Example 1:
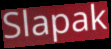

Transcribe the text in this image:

Slapak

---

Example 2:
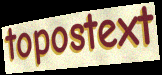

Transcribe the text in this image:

topostext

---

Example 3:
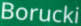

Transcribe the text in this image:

Borucki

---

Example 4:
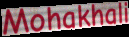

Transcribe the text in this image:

Mohakhali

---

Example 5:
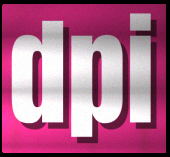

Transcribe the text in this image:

dpi